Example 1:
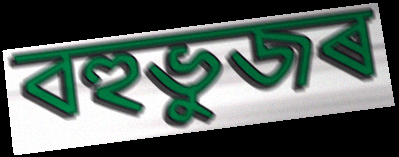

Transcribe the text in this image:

বহুভুজৰ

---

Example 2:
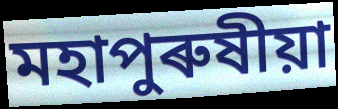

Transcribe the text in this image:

মহাপুৰুষীয়া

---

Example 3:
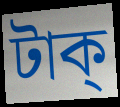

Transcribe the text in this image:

টাক্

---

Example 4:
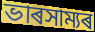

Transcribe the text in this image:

ভাৰসাম্যৰ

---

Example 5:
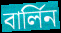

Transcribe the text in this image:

বাৰ্লিন